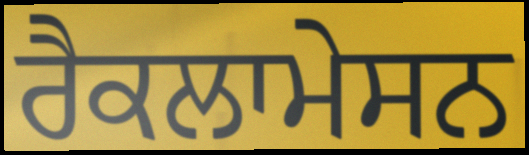
ਰੈਕਲਾਮੇਸਨ